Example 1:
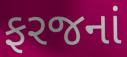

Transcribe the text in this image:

ફરજનાં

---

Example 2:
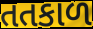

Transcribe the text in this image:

તતકાળ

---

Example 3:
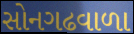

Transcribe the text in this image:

સોનગઢવાળા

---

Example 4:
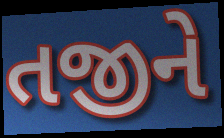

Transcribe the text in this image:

તજીને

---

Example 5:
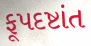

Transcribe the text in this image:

ફૂપદષ્ટાંત